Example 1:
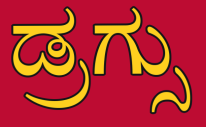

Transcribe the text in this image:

ಡ್ರಗ್ಸು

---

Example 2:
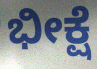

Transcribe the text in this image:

ಭೀಕ್ಷೆ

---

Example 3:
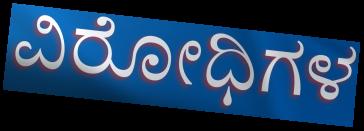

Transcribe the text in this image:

ವಿರೋಧಿಗಳ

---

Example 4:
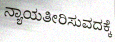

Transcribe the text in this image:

ನ್ಯಾಯತೀರಿಸುವದಕ್ಕೆ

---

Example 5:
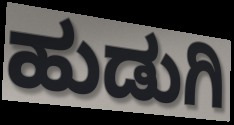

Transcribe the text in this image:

ಹುಡುಗಿ